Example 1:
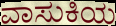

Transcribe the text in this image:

ವಾಸುಕಿಯ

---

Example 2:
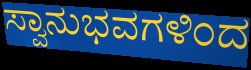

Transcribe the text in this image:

ಸ್ವಾನುಭವಗಳಿಂದ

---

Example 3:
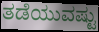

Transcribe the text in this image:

ತಡೆಯುವಷ್ಟು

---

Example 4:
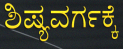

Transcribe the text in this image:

ಶಿಷ್ಯವರ್ಗಕ್ಕೆ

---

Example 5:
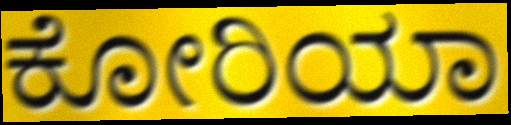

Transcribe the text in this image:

ಕೋರಿಯಾ